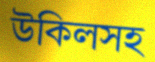
উকিলসহ